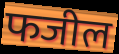
फजील